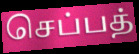
செப்பத்